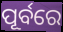
ପୂର୍ବରେ